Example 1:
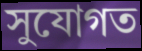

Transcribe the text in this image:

সুযোগত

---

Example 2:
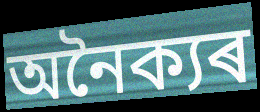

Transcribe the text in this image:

অনৈক্যৰ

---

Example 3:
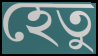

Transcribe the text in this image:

হেতু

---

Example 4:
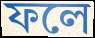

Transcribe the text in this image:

ফলে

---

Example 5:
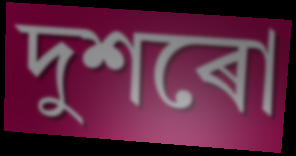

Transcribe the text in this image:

দুশৰো